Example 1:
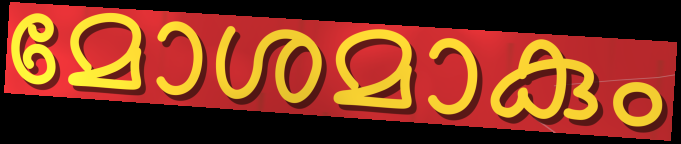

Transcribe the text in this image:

മോശമാകും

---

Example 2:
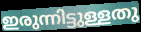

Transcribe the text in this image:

ഇരുന്നിട്ടുള്ളതു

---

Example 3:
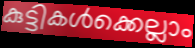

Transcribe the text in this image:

കുട്ടികൾക്കെല്ലാം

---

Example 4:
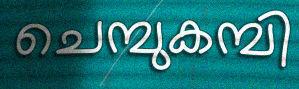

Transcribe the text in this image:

ചെമ്പുകമ്പി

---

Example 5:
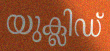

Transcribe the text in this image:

യുക്ലിഡ്